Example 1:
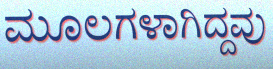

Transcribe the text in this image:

ಮೂಲಗಳಾಗಿದ್ದವು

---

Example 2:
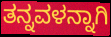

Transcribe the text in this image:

ತನ್ನವಳನ್ನಾಗಿ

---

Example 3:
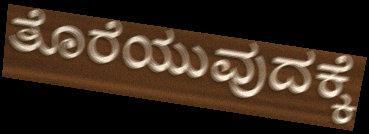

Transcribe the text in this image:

ತೊರೆಯುವುದಕ್ಕೆ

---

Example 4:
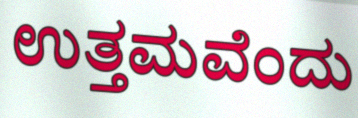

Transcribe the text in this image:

ಉತ್ತಮವೆಂದು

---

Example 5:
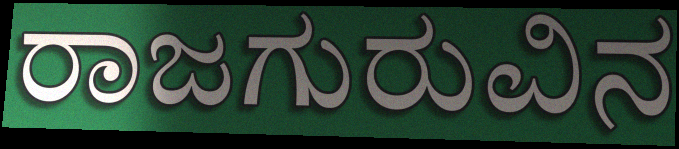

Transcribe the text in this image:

ರಾಜಗುರುವಿನ